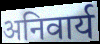
अनिवार्य